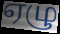
ஏழு